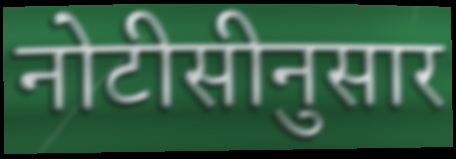
नोटीसीनुसार